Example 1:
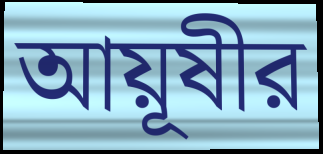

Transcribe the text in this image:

আয়ূষীর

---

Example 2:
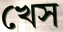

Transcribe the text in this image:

খেস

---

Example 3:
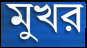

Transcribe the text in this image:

মুখর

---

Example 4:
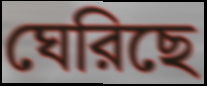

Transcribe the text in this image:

ঘেরিছে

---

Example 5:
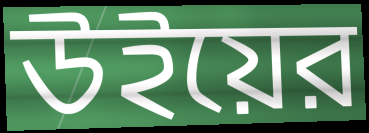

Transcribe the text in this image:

উইয়ের